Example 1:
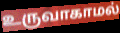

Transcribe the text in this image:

உருவாகாமல்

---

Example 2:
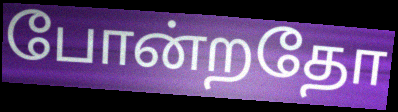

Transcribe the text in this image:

போன்றதோ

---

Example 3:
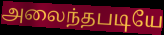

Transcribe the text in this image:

அலைந்தபடியே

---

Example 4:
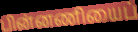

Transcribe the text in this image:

பின்னணியைப்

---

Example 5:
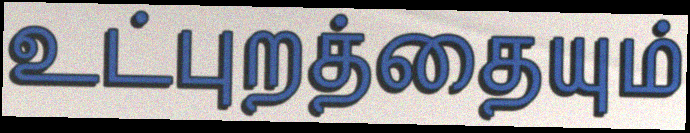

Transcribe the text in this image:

உட்புறத்தையும்